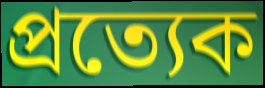
প্রত্যেক